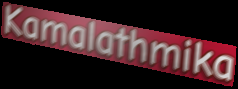
Kamalathmika